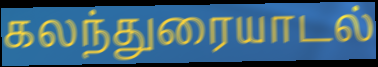
கலந்துரையாடல்